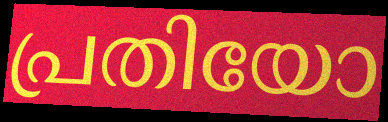
പ്രതിയോ